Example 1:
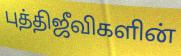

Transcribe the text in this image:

புத்திஜீவிகளின்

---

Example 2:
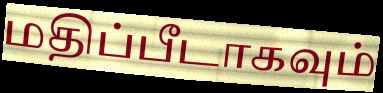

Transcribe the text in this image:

மதிப்பீடாகவும்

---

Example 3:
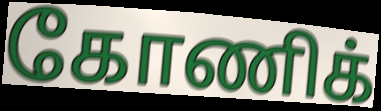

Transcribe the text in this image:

கோணிக்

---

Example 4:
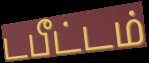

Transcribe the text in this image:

டபீட்டம்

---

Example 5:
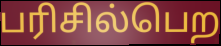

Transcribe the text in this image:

பரிசில்பெற